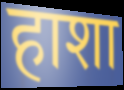
हाशा